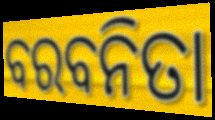
ବରବନିତା